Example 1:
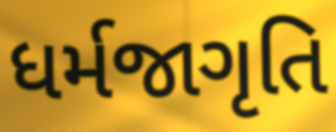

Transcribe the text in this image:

ધર્મજાગૃતિ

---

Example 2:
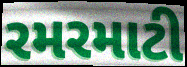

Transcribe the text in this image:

રમરમાટી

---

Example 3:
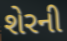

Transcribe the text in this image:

શેરની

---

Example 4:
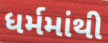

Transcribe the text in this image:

ધર્મમાંથી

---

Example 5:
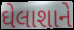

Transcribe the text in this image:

ઘેલાશાને